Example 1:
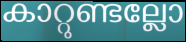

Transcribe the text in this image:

കാറ്റുണ്ടല്ലോ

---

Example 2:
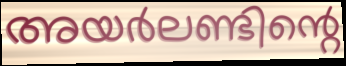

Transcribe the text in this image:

അയർലണ്ടിന്റെ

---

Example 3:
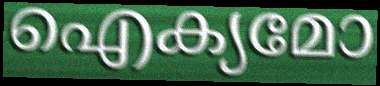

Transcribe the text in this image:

ഐക്യമോ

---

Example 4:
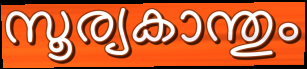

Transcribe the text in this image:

സൂര്യകാന്തും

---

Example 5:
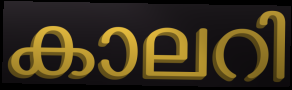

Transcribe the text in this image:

കാലറി